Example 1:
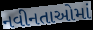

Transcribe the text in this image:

નવીનતાઓમાં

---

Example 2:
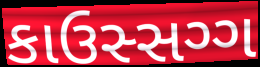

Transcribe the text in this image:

કાઉસ્સગ્ગ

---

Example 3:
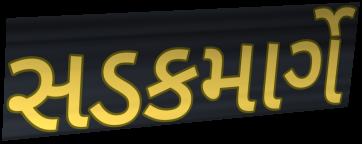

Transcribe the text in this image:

સડકમાર્ગે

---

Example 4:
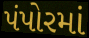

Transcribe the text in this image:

પંપોરમાં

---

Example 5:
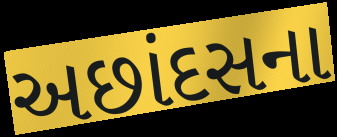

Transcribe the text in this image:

અછાંદસના